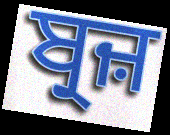
ਬ੍ਰਜ਼